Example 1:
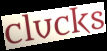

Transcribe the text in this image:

clucks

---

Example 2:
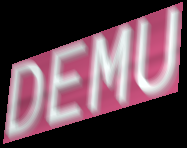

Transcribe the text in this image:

DEMU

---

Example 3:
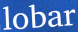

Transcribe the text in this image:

lobar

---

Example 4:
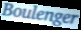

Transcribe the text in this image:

Boulenger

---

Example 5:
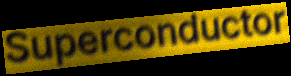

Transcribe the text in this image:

Superconductor